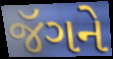
જૅગને